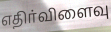
எதிர்விளைவு